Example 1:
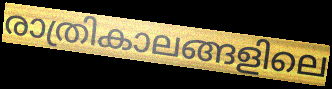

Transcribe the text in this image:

രാത്രികാലങ്ങളിലെ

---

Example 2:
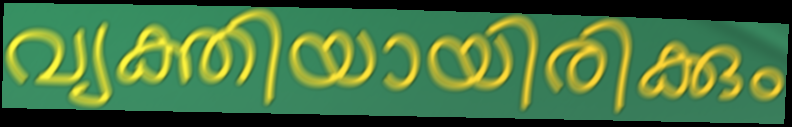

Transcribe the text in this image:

വ്യക്തിയായിരിക്കും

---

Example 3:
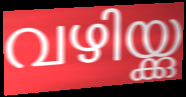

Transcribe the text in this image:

വഴിയ്ക്കു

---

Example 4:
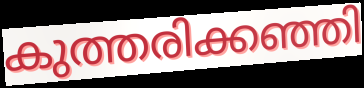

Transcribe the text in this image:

കുത്തരിക്കഞ്ഞി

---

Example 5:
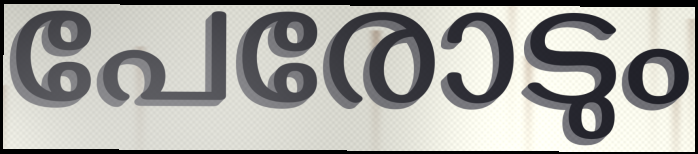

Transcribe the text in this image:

പേരോടും